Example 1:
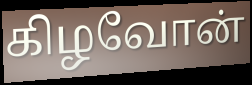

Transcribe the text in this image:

கிழவோன்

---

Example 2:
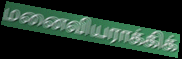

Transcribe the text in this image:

மனைவியராக்கிக்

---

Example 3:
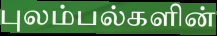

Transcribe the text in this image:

புலம்பல்களின்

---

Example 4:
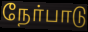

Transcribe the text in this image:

நேர்பாடு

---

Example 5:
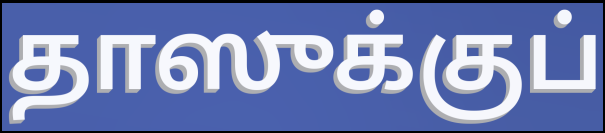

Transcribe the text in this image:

தாஸுக்குப்